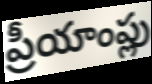
ప్రీయాంప్లు